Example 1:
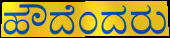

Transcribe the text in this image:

ಹೌದೆಂದರು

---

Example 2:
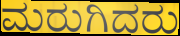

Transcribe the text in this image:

ಮರುಗಿದರು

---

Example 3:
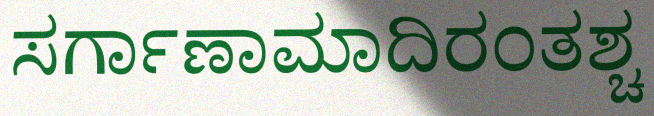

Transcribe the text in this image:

ಸರ್ಗಾಣಾಮಾದಿರಂತಶ್ಚ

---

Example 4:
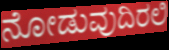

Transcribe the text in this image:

ನೋಡುವುದಿರಲಿ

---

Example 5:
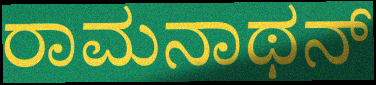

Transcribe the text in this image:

ರಾಮನಾಥನ್